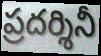
ప్రదర్శినీ